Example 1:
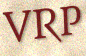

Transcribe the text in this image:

VRP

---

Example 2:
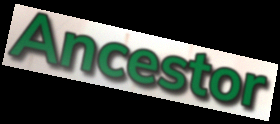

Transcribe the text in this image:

Ancestor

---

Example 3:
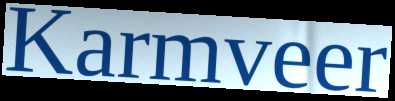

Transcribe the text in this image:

Karmveer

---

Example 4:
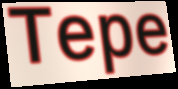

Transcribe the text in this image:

Tepe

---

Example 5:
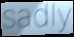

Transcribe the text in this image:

sadly